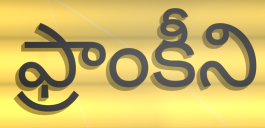
ఫ్రాంకీని